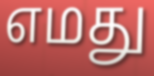
எமது